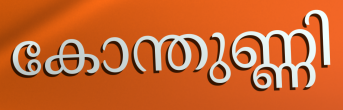
കോന്തുണ്ണി